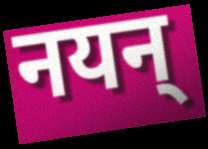
नयन्